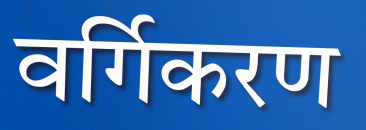
वर्गिकरण